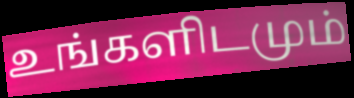
உங்களிடமும்